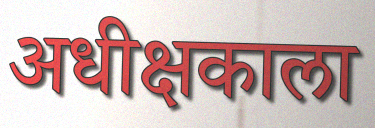
अधीक्षकाला